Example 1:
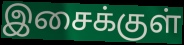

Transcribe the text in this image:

இசைக்குள்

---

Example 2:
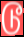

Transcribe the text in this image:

டூ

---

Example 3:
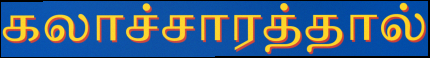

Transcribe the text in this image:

கலாச்சாரத்தால்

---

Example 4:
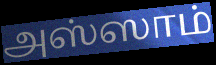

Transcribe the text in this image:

அஸ்ஸாம்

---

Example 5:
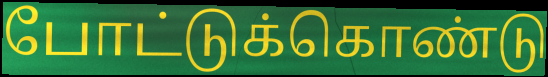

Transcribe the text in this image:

போட்டுக்கொண்டு